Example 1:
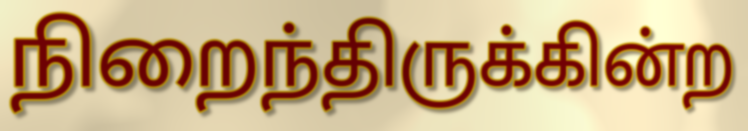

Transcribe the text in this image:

நிறைந்திருக்கின்ற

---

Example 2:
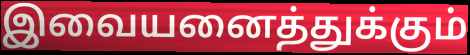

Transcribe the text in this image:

இவையனைத்துக்கும்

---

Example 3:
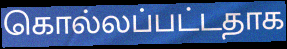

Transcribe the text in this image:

கொல்லப்பட்டதாக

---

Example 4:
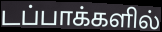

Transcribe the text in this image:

டப்பாக்களில்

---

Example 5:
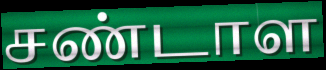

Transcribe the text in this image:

சண்டாள